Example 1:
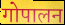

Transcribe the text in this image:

गोपालन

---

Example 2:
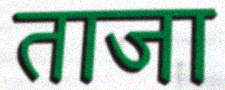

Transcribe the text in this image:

ताजा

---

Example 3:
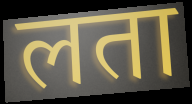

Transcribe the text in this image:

लता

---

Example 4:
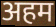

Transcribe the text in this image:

अहम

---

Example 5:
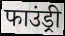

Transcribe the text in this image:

फाउंड्री